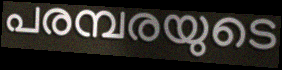
പരമ്പരയുടെ